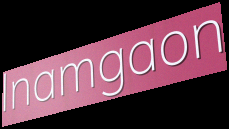
Inamgaon